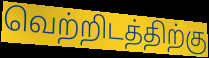
வெற்றிடத்திற்கு